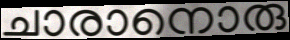
ചാരാനൊരു